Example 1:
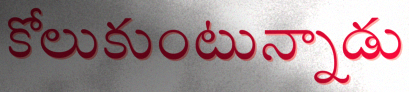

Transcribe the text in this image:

కోలుకుంటున్నాడు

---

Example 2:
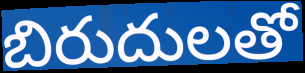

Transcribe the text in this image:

బిరుదులతో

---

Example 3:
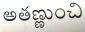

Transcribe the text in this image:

అతణ్ణుంచి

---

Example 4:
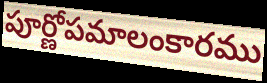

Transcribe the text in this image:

పూర్ణోపమాలంకారము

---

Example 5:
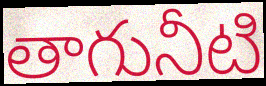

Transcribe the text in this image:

తాగునీటి